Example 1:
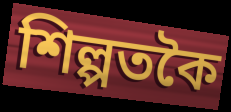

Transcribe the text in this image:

শিল্পতকৈ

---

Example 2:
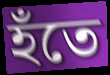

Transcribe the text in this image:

হঁতে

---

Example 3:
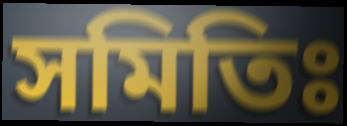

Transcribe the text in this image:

সমিতিঃ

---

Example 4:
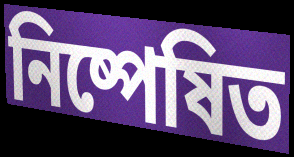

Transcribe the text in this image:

নিষ্পেষিত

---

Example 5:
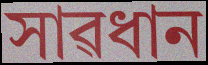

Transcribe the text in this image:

সাৱধান